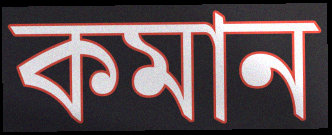
কমান